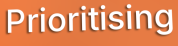
Prioritising